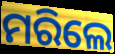
ମରିଲେ